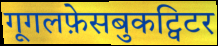
गूगलफ़ेसबुकट्विटर